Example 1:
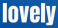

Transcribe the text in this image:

lovely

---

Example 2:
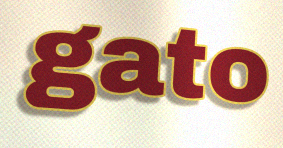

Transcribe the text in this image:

gato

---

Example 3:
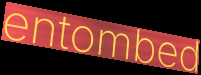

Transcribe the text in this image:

entombed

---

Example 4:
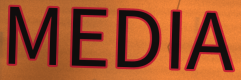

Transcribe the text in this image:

MEDIA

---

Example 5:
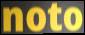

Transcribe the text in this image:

noto